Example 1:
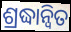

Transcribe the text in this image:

ଶ୍ରଦ୍ଧାନ୍ୱିତ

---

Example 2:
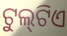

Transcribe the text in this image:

ଟୁଲ୍‍ଟିଏ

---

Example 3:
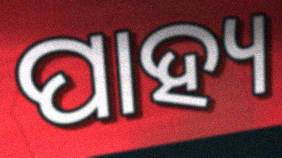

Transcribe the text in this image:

ପାହ୍ୟ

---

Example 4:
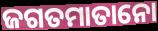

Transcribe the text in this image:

ଜଗତମାତାନୋ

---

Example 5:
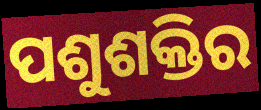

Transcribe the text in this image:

ପଶୁଶକ୍ତିର